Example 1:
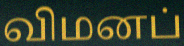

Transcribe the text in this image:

விமனப்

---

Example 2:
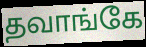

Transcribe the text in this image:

தவாங்கே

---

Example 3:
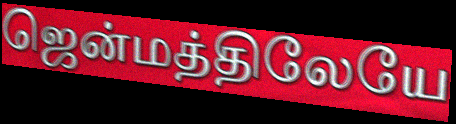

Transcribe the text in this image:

ஜென்மத்திலேயே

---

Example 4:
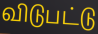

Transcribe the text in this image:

விடுபட்டு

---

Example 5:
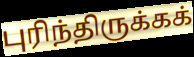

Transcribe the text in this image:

புரிந்திருக்கக்